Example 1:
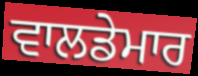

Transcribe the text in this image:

ਵਾਲਡੇਮਾਰ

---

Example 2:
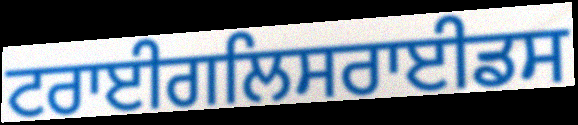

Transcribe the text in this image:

ਟਰਾਈਗਲਿਸਰਾਈਡਸ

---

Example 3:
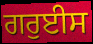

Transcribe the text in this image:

ਗਰੁਈਸ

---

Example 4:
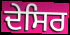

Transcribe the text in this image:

ਦੇਸਿਰ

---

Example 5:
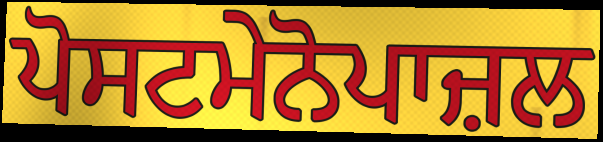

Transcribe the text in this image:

ਪੋਸਟਮੇਨੋਪਾਜ਼ਲ